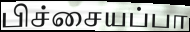
பிச்சையப்பா